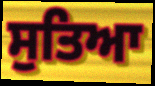
ਸੁਤਿਆ